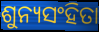
ଶୁନ୍ୟସଂହିତା